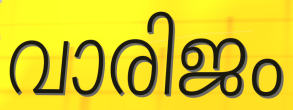
വാരിജം